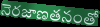
నెరజాణతనంతో